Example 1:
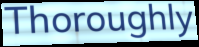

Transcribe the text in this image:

Thoroughly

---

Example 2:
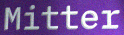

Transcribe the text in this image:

Mitter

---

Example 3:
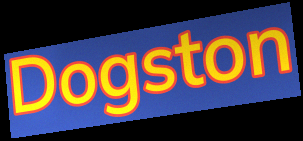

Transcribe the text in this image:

Dogston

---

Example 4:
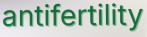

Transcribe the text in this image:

antifertility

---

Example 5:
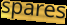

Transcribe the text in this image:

spares